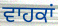
ਵਾਹਕਾਂ